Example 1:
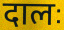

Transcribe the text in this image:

दालः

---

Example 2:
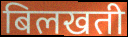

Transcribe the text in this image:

बिलखती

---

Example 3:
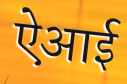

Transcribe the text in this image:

ऐआई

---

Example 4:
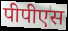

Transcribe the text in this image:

पीपीएस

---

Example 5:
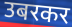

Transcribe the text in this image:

उबरकर